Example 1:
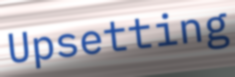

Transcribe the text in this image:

Upsetting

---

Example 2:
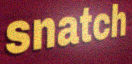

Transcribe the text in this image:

snatch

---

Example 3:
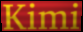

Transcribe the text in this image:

Kimi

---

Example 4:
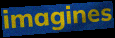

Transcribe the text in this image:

imagines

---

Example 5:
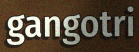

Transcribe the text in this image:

gangotri